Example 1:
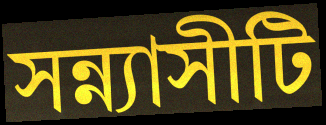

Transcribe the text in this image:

সন্ন্যাসীটি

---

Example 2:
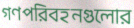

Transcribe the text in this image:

গণপরিবহনগুলোর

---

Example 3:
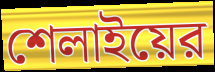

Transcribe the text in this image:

শেলাইয়ের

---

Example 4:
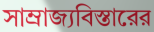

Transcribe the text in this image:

সাম্রাজ্যবিস্তারের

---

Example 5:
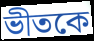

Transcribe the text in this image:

ভীতকে